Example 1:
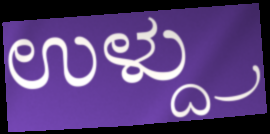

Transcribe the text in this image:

ಉಳ್ದ್ರು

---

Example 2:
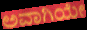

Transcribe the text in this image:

ಅವಾಗಿಯೇ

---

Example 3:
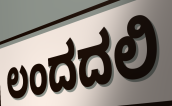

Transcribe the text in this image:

ಲಂದದಲಿ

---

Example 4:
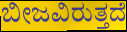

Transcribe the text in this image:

ಬೀಜವಿರುತ್ತದೆ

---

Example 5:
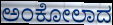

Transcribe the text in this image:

ಅಂಕೋಲಾದ